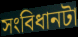
সংবিধানটা